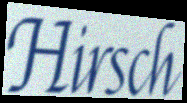
Hirsch